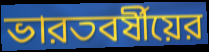
ভারতবর্ষীয়ের